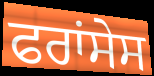
ਫਰਾਂਸੇਸ